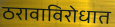
ठरावाविरोधात